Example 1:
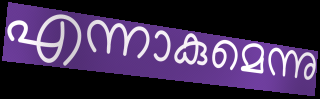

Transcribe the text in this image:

എന്നാകുമെന്നു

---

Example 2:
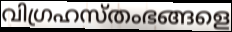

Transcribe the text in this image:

വിഗ്രഹസ്തംഭങ്ങളെ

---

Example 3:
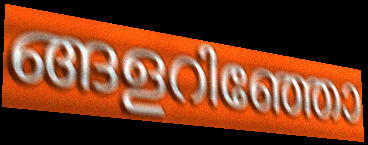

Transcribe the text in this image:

ങ്ങളറിഞ്ഞോ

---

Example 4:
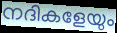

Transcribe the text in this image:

നദികളേയും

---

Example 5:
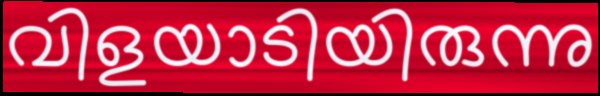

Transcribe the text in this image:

വിളയാടിയിരുന്നു